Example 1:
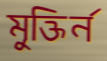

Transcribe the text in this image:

মুক্তির্ন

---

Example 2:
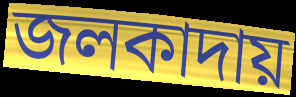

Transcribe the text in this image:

জলকাদায়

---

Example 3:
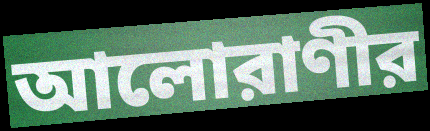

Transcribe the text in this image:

আলোরাণীর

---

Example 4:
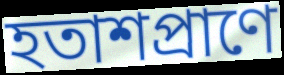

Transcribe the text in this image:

হতাশপ্রাণে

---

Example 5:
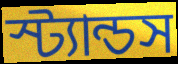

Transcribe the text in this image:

স্ট্যান্ডস